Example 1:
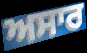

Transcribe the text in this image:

ਅਸਾਰ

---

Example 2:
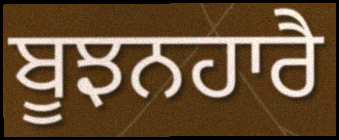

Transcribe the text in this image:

ਬੂਝਨਹਾਰੈ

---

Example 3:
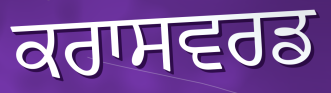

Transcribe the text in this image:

ਕਰਾਸਵਰਡ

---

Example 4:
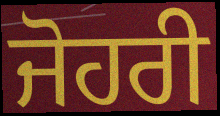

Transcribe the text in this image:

ਜੋਹਰੀ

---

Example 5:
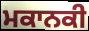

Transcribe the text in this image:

ਮਕਾਨਕੀ